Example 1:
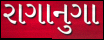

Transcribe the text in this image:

રાગાનુગા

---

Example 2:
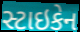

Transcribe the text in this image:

સ્ટાઇકેન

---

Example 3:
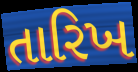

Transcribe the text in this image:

તારિખ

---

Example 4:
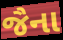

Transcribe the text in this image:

જૈના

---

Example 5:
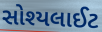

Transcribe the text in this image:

સોશ્યલાઈટ